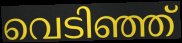
വെടിഞ്ഞ്